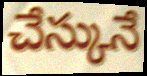
చేస్కునే